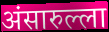
अंसारुल्ला